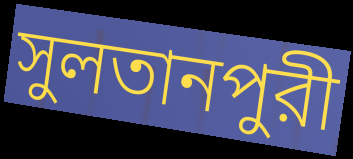
সুলতানপুরী